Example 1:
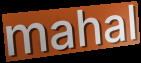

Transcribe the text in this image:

mahal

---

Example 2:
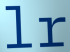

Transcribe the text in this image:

lr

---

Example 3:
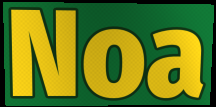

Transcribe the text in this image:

Noa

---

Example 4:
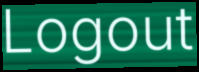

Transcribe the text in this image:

Logout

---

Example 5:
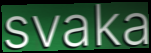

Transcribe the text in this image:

svaka